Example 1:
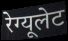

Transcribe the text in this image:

रेग्यूलेट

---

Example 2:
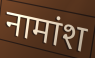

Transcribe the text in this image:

नामांश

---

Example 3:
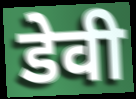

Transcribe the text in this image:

डेवी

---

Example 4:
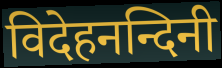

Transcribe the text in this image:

विदेहनन्दिनी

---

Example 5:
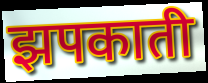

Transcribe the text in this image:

झपकाती